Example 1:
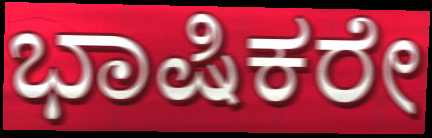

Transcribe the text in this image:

ಭಾಷಿಕರೇ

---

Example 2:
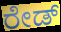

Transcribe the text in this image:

ರೇಡ್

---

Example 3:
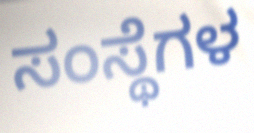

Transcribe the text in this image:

ಸಂಸ್ಥೆಗಳ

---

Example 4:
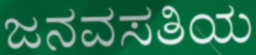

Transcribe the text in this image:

ಜನವಸತಿಯ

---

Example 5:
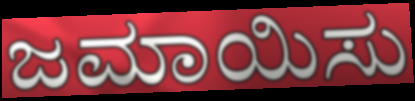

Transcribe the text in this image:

ಜಮಾಯಿಸು